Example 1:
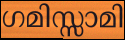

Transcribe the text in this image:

ഗമിസ്സാമി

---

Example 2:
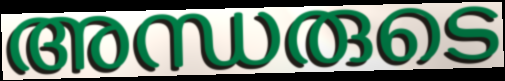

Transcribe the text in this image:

അന്ധരുടെ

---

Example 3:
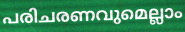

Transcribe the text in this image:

പരിചരണവുമെല്ലാം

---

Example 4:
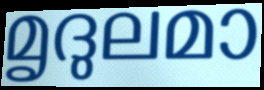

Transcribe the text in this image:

മൃദുലമാ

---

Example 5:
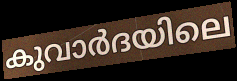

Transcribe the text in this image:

കുവാർദയിലെ